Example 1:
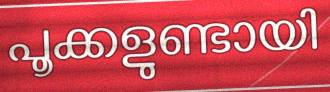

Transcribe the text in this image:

പൂക്കളുണ്ടായി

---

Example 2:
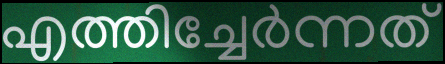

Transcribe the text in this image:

എത്തിച്ചേർന്നത്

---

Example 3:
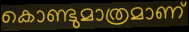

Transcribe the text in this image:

കൊണ്ടുമാത്രമാണ്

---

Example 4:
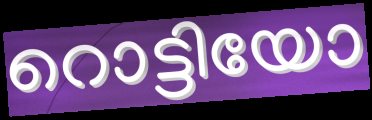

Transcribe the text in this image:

റൊട്ടിയോ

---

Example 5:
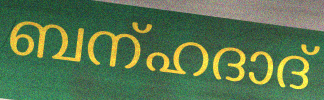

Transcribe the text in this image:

ബന്ഹദാദ്